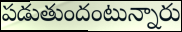
పడుతుందంటున్నారు